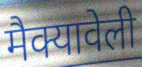
मैक्यावेली